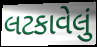
લટકાવેલું